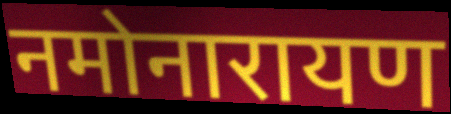
नमोनारायण